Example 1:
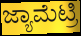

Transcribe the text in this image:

ಜ್ಯಾಮೆಟ್ರಿ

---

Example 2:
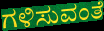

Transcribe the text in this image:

ಗಳಿಸುವಂತೆ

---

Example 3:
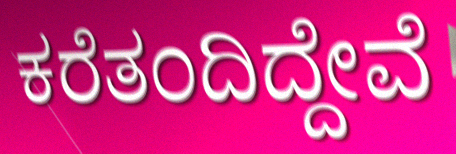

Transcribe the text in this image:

ಕರೆತಂದಿದ್ದೇವೆ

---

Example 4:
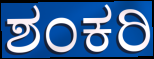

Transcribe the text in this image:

ಶಂಕರಿ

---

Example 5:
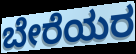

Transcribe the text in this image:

ಬೇರೆಯರ